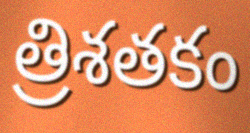
త్రిశతకం